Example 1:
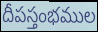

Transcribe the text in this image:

దీపస్తంభముల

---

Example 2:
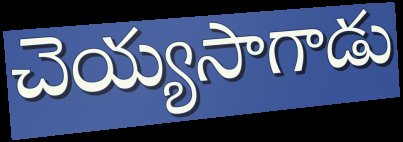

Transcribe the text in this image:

చెయ్యసాగాడు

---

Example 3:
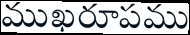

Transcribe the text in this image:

ముఖరూపము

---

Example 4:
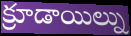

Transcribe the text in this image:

క్రూడాయిల్ను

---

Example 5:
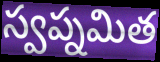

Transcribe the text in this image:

స్వప్నమిత